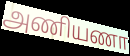
அணியணா